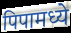
पिपामध्ये